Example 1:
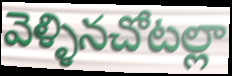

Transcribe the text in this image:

వెళ్ళినచోటల్లా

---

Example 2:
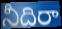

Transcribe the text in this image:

నీదిరా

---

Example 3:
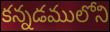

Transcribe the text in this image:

కన్నడములోని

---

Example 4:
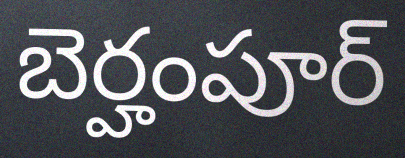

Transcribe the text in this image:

బెర్హంపూర్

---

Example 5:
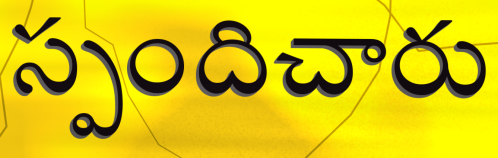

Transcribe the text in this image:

స్పందిచారు